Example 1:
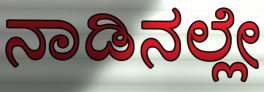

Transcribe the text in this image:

ನಾಡಿನಲ್ಲೇ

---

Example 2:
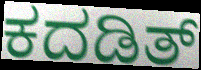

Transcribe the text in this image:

ಕದಡಿತ್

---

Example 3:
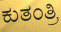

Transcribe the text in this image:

ಕುತಂತ್ರಿ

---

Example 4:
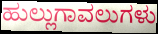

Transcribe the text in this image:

ಹುಲ್ಲುಗಾವಲುಗಳು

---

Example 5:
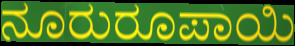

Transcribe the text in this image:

ನೂರುರೂಪಾಯಿ